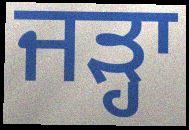
ਜੜ੍ਹਾ